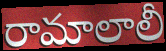
రామాలాలీ